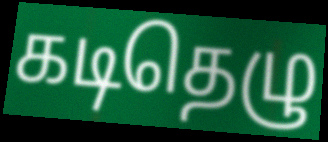
கடிதெழு